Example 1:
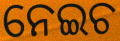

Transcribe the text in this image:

ନେଇଚ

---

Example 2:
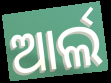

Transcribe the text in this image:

ଆର୍ଲ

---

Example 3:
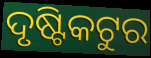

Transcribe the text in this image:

ଦୃଷ୍ଟିକଟୁର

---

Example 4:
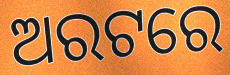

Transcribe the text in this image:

ଅରଟରେ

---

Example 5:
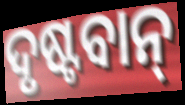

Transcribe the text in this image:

ଦୃଷ୍ଟବାନ୍